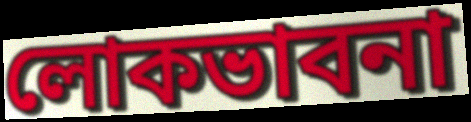
লোকভাবনা